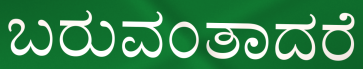
ಬರುವಂತಾದರೆ